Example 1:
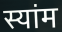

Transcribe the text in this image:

स्यांम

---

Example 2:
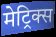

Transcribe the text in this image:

मेट्रिक्‍स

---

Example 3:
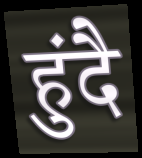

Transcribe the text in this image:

हुंदै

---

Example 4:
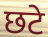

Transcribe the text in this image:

छटे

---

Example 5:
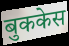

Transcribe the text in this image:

बुककेस